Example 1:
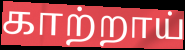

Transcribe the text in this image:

காற்றாய்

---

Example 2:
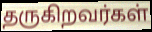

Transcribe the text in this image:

தருகிறவர்கள்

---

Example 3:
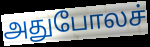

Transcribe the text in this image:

அதுபோலச்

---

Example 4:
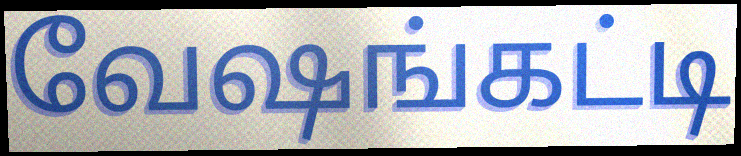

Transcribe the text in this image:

வேஷங்கட்டி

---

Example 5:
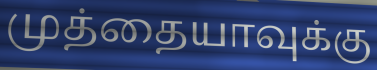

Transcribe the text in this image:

முத்தையாவுக்கு